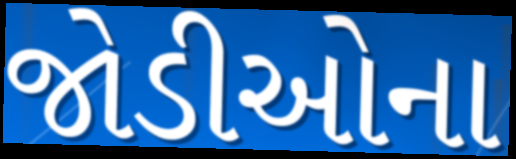
જોડીઓના